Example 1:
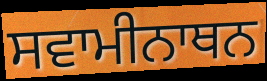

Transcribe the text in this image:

ਸਵਾਮੀਨਾਥਨ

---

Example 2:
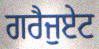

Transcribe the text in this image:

ਗਰੈਜੁਏਟ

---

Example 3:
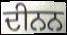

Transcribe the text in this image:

ਦੀਨਨ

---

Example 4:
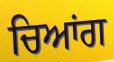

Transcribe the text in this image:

ਚਿਆਂਗ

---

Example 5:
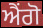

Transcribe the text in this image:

ਐਂਗੋ